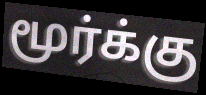
மூர்க்கு